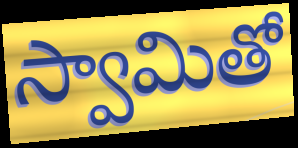
స్వామితో